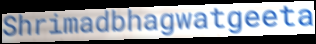
Shrimadbhagwatgeeta